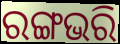
ରଙ୍ଗଭରି